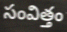
సంవిత్తం